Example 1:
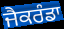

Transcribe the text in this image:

ਜੈਕਰੰਡਾ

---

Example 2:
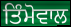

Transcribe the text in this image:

ਤਿੰਮੋਵਾਲ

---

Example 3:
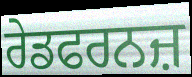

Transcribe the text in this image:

ਰੇਡਫਰਨਜ਼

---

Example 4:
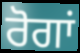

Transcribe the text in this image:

ਰੋਗਾਂ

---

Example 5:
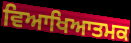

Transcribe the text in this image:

ਵਿਆਖਿਆਤਮਕ